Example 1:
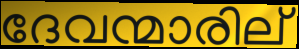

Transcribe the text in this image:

ദേവന്മാരില്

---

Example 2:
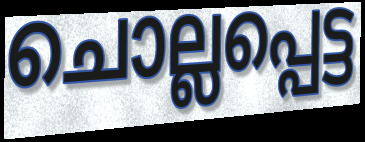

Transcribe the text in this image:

ചൊല്ലപ്പെട്ട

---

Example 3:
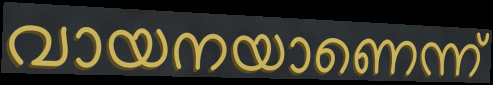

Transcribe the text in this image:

വായനയാണെന്ന്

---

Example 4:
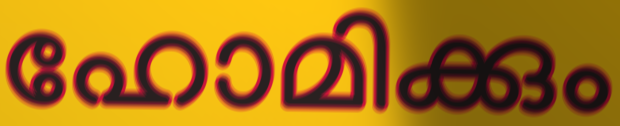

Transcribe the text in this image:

ഹോമിക്കും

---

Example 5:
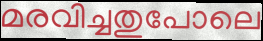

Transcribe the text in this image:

മരവിച്ചതുപോലെ